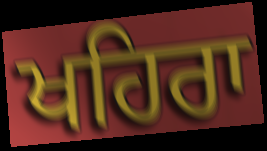
ਖਹਿਰਾ